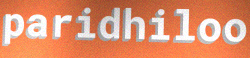
paridhiloo